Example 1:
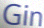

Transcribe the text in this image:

Gin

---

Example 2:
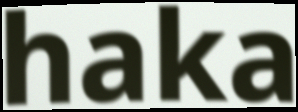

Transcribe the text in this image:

haka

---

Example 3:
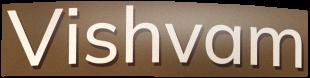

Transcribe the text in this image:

Vishvam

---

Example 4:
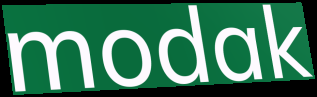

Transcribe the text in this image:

modak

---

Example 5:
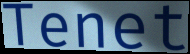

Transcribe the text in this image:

Tenet